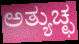
ಅತ್ಯುಚ್ಛ